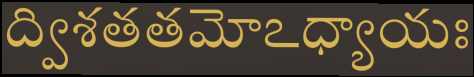
ద్విశతతమోఽధ్యాయః